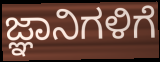
ಜ್ಞಾನಿಗಳಿಗೆ